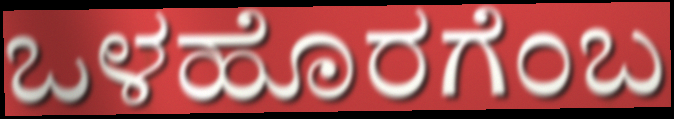
ಒಳಹೊರಗೆಂಬ